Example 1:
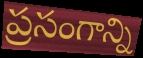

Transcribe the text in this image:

ప్రసంగాన్ని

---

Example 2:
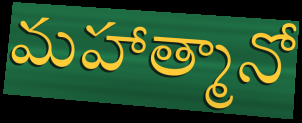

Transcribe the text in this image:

మహాత్మానో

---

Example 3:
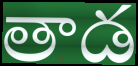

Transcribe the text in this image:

తాడ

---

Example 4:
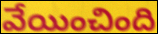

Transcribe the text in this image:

వేయించింది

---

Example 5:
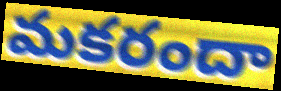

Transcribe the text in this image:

మకరందా